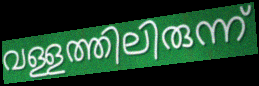
വള്ളത്തിലിരുന്ന്